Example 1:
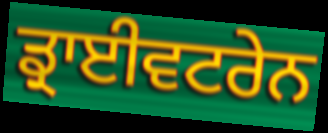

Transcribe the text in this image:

ਡ੍ਰਾਈਵਟਰੇਨ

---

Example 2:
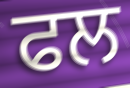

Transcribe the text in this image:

ਫਲ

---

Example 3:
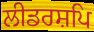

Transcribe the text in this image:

ਲੀਡਰਸ਼ਪਿ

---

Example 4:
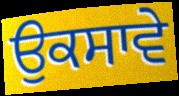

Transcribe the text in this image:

ਉਕਸਾਵੇ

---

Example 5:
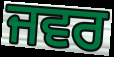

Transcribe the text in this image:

ਜਵਰ